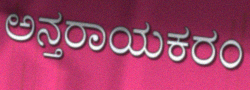
ಅನ್ತರಾಯಕರಂ